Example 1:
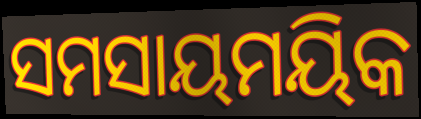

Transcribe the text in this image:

ସମସାୟମୟିକ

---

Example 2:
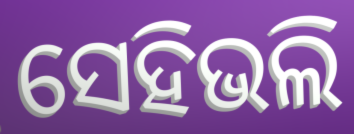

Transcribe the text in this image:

ସେହିଭଲି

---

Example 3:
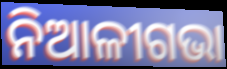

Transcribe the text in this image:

ନିଆଳୀଗଭା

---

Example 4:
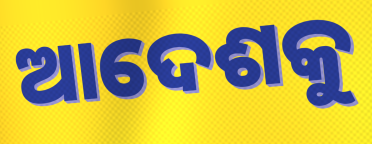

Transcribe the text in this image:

ଆଦେଶକୁ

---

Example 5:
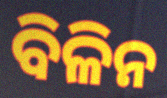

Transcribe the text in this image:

ବିଳିନ